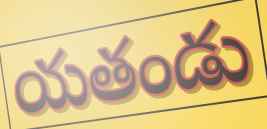
యతండు